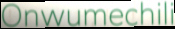
Onwumechili